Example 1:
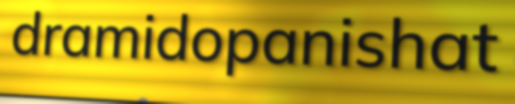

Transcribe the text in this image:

dramidopanishat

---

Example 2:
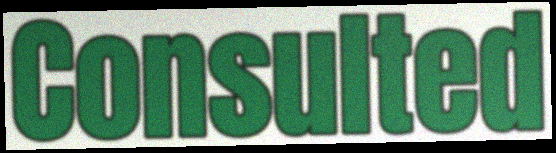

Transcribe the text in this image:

Consulted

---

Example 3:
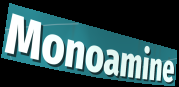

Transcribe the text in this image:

Monoamine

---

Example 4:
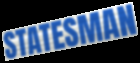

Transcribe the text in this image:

STATESMAN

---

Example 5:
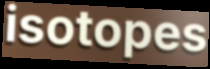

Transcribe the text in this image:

isotopes